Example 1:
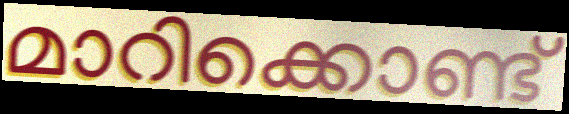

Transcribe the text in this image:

മാറിക്കൊണ്ട്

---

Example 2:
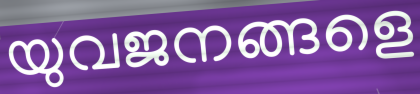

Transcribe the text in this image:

യുവജനങ്ങളെ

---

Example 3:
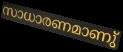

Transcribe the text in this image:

സാധാരണമാണു്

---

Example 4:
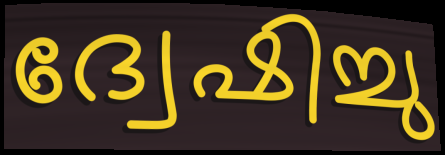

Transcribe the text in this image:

ദ്വേഷിച്ചു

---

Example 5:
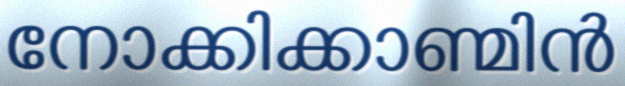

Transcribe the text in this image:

നോക്കിക്കാണ്മിൻ